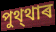
পুথ্থাৰ